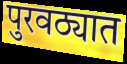
पुरवठ्यात